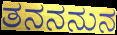
ತನನನುನ